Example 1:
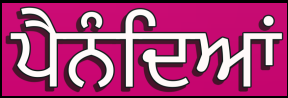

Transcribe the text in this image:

ਪੈਨੰਦਿਆਂ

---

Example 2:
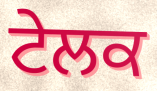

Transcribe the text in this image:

ਟੇਲਕ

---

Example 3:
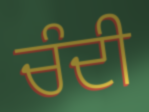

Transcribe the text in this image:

ਚੰਦੀ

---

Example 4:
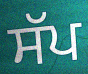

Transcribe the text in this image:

ਸੱਪ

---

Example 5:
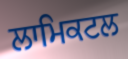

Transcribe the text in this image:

ਲਾਮਿਕਟਲ